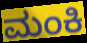
ಮಂಕಿ